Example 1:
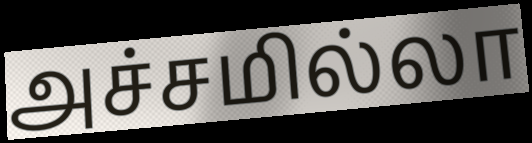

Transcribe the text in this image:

அச்சமில்லா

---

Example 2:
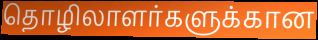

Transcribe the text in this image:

தொழிலாளர்களுக்கான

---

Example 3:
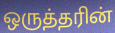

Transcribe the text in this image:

ஒருத்தரின்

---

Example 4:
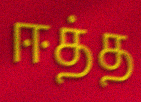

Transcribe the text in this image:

ஈத்த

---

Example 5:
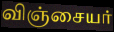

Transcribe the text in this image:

விஞ்சையர்